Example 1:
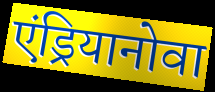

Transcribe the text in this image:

एंड्रियानोवा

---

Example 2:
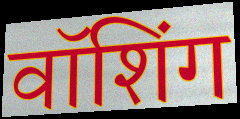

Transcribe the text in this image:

वॉशिंग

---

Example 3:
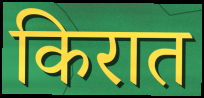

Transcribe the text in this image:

किरात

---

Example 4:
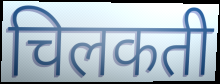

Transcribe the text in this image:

चिलकती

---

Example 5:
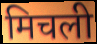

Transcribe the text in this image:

मिचली